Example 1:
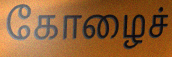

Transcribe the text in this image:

கோழைச்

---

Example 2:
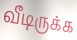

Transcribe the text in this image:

வீடிருக்க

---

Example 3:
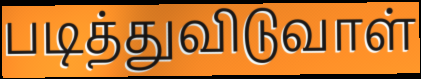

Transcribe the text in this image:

படித்துவிடுவாள்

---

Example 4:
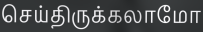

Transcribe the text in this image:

செய்திருக்கலாமோ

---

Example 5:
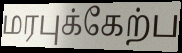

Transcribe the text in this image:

மரபுக்கேற்ப